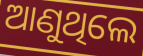
ଆଣୁଥିଲେ